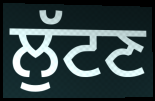
ਲੁੱਟਣ